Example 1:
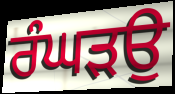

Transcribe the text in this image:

ਰੰਘੜਉ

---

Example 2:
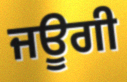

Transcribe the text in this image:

ਜਊਗੀ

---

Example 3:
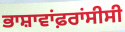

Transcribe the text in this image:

ਭਾਸ਼ਾਵਾਂਫ਼ਰਾਂਸੀਸੀ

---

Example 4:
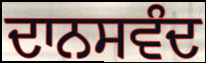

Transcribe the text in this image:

ਦਾਨਸਵੰਦ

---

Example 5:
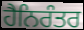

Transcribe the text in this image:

ਹੈਨਿਰੰਤਰ